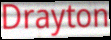
Drayton